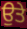
ਉਤੇ